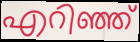
എറിഞ്ഞ്